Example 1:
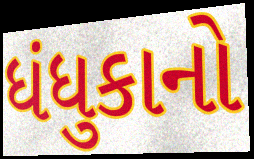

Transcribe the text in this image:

ધંધુકાનો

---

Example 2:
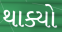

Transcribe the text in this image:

થાક્યો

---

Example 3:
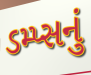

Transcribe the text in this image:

ડમ્પ્સનું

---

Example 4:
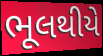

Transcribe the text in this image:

ભૂલથીયે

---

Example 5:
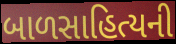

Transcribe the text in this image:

બાળસાહિત્યની